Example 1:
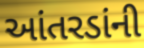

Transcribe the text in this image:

આંતરડાંની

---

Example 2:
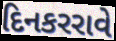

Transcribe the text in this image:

દિનકરરાવે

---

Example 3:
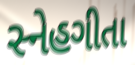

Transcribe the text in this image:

સ્નેહગીતા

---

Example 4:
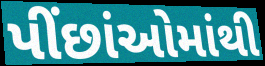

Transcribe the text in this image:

પીંછાંઓમાંથી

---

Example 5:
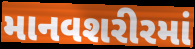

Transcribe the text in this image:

માનવશરીરમાં